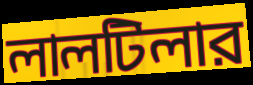
লালটিলার